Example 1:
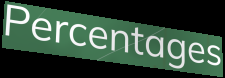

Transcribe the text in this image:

Percentages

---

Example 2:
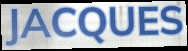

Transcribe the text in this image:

JACQUES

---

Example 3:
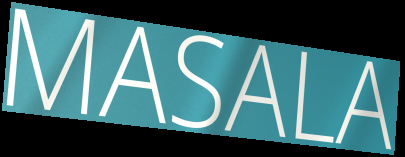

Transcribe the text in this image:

MASALA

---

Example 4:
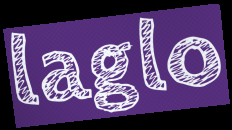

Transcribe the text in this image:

laglo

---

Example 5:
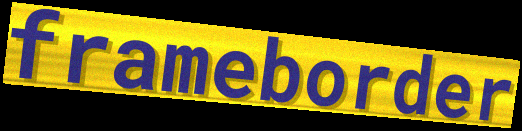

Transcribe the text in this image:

frameborder